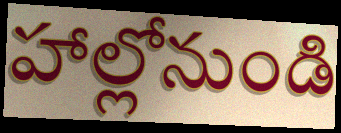
హాల్లోనుండి